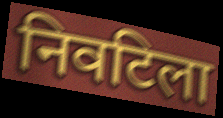
निवटिला